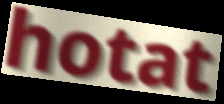
hotat